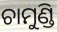
ଚାମୁଣ୍ଡି